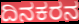
ದಿನಕರನ